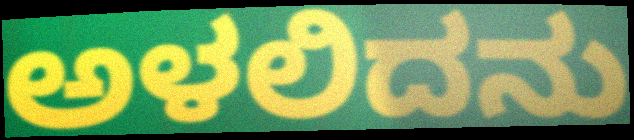
ಅಳಲಿದನು